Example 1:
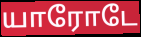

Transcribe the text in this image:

யாரோடே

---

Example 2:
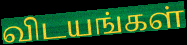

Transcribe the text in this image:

விடயங்கள்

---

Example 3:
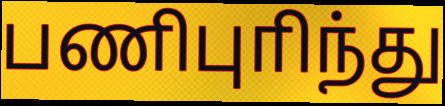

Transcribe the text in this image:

பணிபுரிந்து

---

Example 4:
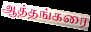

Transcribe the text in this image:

ஆத்தங்கரை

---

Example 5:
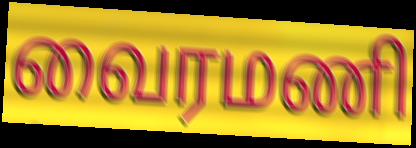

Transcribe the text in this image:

வைரமணி